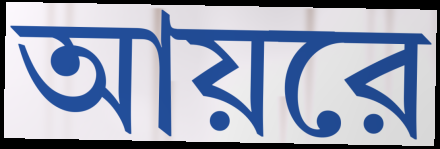
আয়রে